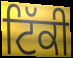
ਟਿੱਕੀ